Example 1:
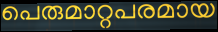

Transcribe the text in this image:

പെരുമാറ്റപരമായ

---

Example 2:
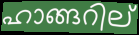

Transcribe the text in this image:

ഹാങ്ങറില്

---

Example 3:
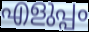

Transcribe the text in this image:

എളുപ്പം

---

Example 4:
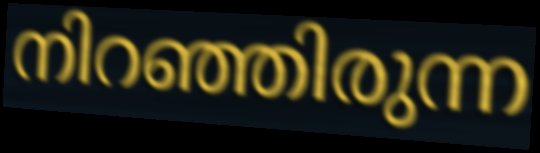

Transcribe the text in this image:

നിറഞ്ഞിരുന്ന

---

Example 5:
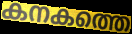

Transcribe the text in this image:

കനകത്തെ